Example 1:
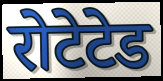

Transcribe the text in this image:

रोटेटेड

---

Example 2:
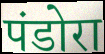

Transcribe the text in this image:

पंडोरा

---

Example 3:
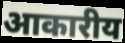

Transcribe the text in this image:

आकारीय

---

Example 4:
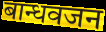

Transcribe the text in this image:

बान्धवजन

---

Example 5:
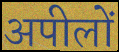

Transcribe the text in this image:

अपीलों